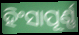
ହିଂସାପୂର୍ଣ୍ଣ